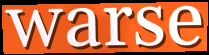
warse